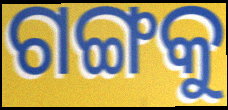
ଗଙ୍ଗକୁ